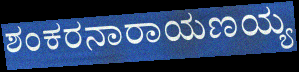
ಶಂಕರನಾರಾಯಣಯ್ಯ